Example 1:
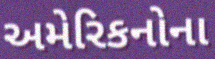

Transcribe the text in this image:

અમેરિકનોના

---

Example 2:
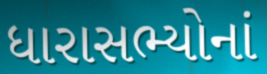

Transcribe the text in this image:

ધારાસભ્યોનાં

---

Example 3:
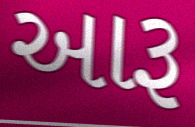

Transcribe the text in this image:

આરૂ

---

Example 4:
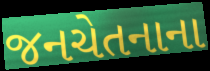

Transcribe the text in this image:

જનચેતનાના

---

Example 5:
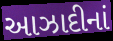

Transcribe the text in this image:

આઝાદીનાં